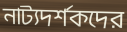
নাট্যদর্শকদের